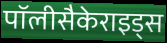
पॉलीसैकेराइड्स